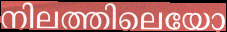
നിലത്തിലെയോ